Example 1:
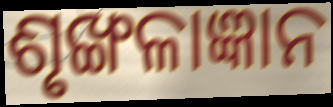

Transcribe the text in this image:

ଶୃଙ୍ଖଳାଜ୍ଞାନ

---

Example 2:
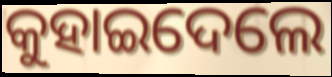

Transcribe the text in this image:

କୁହାଇଦେଲେ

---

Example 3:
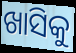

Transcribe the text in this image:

ଖାସିକୁ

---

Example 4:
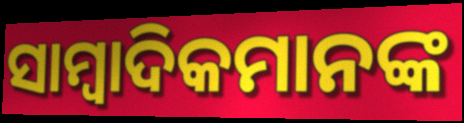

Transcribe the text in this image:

ସାମ୍ବାଦିକମାନଙ୍କ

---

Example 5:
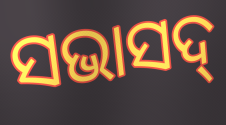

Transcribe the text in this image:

ସଭାସଦ୍